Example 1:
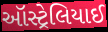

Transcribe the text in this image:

ઑસ્ટ્રેલિયાઈ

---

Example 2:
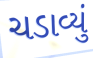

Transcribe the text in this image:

ચડાવ્યું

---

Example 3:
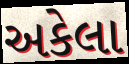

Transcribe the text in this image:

અકેલા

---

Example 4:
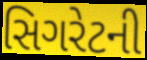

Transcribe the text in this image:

સિગરેટની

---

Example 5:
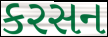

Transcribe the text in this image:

કરસન